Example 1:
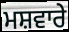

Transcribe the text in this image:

ਮਸ਼ਵਾਰੇ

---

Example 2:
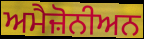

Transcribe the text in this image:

ਅਮੈਜ਼ੋਨੀਅਨ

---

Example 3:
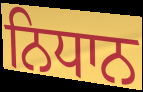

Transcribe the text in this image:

ਨਿਧਾਨ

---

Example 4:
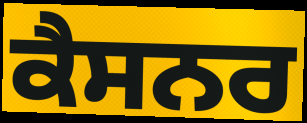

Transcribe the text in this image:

ਕੈਸਨਰ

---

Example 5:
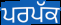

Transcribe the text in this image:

ਪਰਪੱਕ